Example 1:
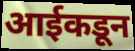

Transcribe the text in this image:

आईकडून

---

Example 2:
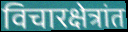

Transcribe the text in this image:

विचारक्षेत्रांत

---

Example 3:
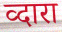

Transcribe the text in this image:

व्दारा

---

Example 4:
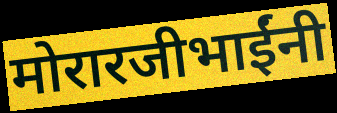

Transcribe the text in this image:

मोरारजीभाईंनी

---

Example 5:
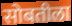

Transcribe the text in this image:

सोबतीला